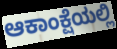
ಆಕಾಂಕ್ಷೆಯಲ್ಲಿ